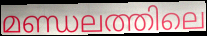
മണ്ഡലത്തിലെ